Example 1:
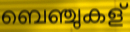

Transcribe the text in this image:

ബെഞ്ചുകള്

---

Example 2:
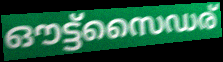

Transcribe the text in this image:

ഔട്ട്സൈഡര്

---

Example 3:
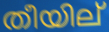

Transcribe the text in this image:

തീയില്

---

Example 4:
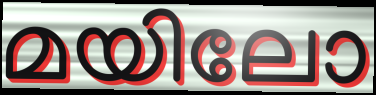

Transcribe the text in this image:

മയിലോ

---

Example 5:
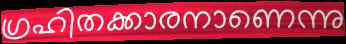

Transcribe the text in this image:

ഗ്രഹിതക്കാരനാണെന്നു